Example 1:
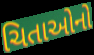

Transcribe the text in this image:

ચિતાઓનો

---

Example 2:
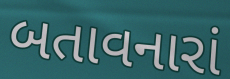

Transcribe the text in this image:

બતાવનારાં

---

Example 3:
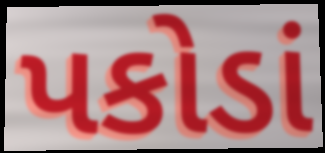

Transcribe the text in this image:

પકોડાં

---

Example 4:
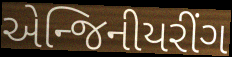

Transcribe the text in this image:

એન્જિનીયરીંગ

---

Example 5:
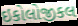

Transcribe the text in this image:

ઇકોલોજીકલ